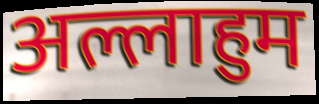
अल्लाहुम